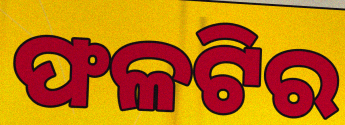
ଫଳଟିର